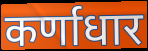
कर्णाधार